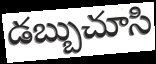
డబ్బుచూసి